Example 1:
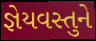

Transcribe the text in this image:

જ્ઞેયવસ્તુને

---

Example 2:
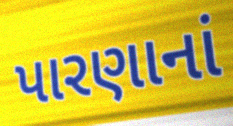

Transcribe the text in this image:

પારણાનાં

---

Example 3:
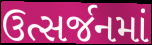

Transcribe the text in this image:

ઉત્સર્જનમાં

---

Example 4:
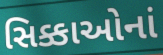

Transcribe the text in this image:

સિક્કાઓનાં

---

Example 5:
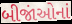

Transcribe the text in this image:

બીજાંઓનાં